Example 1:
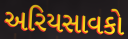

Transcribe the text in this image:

અરિયસાવકો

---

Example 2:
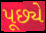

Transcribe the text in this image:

પૂછ્યે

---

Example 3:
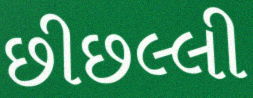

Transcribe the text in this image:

છીછલ્લી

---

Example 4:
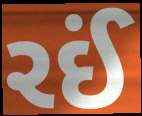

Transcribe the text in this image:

રઈં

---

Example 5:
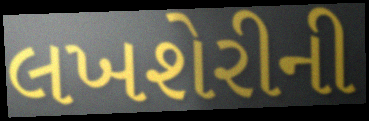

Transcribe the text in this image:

લખશેરીની